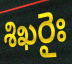
శిఖరైః